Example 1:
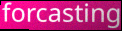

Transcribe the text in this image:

forcasting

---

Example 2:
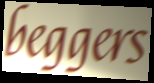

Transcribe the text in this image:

beggers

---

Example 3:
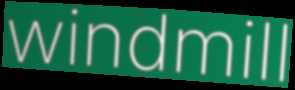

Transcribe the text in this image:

windmill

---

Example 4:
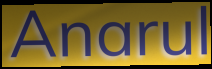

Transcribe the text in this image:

Anarul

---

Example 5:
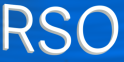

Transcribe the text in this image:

RSO